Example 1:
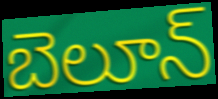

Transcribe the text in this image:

బెలూన్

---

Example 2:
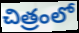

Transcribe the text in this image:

చిత్రంలో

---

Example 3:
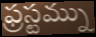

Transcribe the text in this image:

ఫ్రస్టమ్ను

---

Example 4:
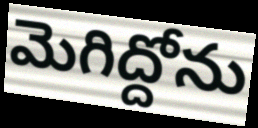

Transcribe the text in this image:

మెగిద్దోను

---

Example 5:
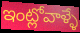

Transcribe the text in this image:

ఇంట్లోవాళ్ళే